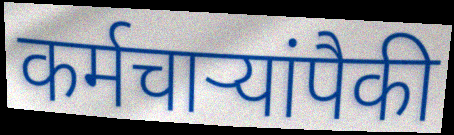
कर्मचाऱ्यांपैकी